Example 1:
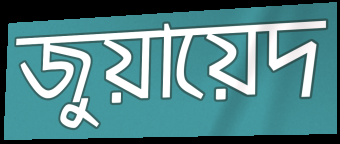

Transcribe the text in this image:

জুয়ায়েদ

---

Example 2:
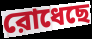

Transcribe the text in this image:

রোধেছে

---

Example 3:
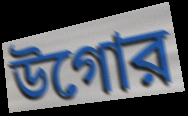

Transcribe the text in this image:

উগোর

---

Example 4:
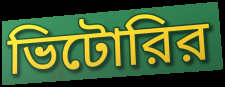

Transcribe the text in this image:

ভিটোরির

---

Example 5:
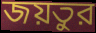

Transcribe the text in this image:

জয়তুর